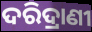
ଦରିଦ୍ରାଣୀ